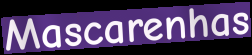
Mascarenhas